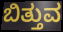
ಬಿತ್ತುವ